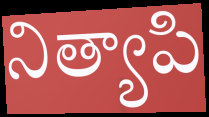
నిత్యాపి